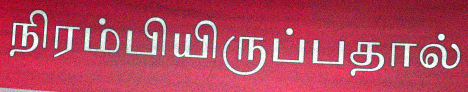
நிரம்பியிருப்பதால்